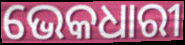
ଭେକଧାରୀ